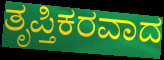
ತೃಪ್ತಿಕರವಾದ